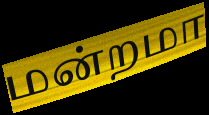
மன்றமா